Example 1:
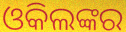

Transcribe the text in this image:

ଓକିଲଙ୍କର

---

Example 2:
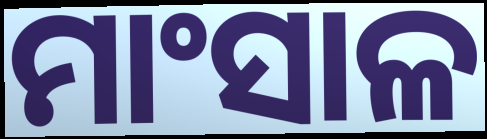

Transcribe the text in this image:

ମାଂସାଳ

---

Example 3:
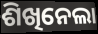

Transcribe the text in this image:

ଶିଖିନେଲା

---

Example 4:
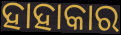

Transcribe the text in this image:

ହାହାକାର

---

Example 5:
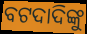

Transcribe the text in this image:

ବଟଦାଦିଙ୍କୁ